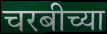
चरबीच्या